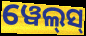
ୱେଲ୍‌ସ୍